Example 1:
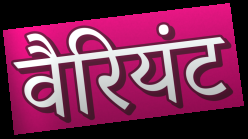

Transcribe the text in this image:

वैरियंट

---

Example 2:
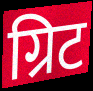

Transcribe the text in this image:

ग्रिट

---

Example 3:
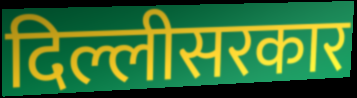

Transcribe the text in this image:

दिल्लीसरकार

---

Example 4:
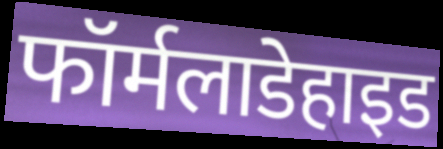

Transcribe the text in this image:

फॉर्मलाडेहाइड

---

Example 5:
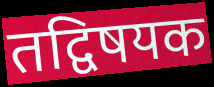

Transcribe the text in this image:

तद्विषयक